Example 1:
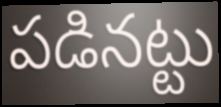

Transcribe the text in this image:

పడినట్టు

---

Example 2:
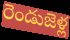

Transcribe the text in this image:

రెండుజెళ్ల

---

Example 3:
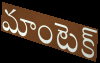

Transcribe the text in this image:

మాంటెక్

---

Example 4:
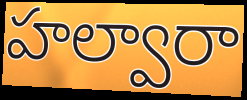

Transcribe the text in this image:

హల్వారా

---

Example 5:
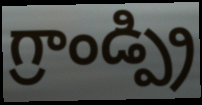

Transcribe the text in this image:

గ్రాండ్ప్రి